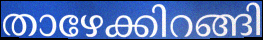
താഴേക്കിറങ്ങി